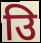
उि